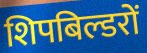
शिपबिल्डरों